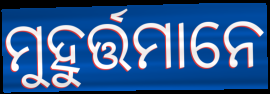
ମୁହୁର୍ତ୍ତମାନେ